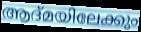
ആദ്മയിലേക്കും